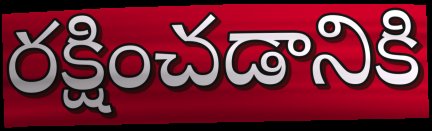
రక్షించడానికి